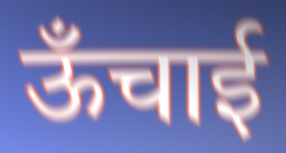
ऊँचाई